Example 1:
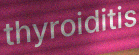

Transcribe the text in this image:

thyroiditis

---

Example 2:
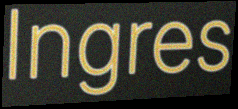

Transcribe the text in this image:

Ingres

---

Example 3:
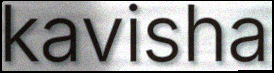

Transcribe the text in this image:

kavisha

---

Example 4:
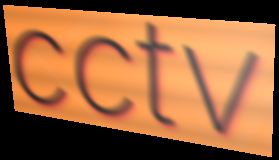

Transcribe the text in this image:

cctv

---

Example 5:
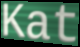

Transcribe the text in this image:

Kat